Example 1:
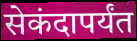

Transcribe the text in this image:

सेकंदापर्यंत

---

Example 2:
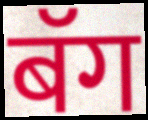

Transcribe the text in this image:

बॅग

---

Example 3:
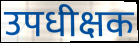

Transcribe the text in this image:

उपधीक्षक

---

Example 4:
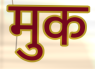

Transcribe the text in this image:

मुक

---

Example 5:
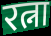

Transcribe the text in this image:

रत्ना